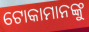
ଟୋକାମାନଙ୍କୁ